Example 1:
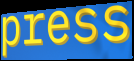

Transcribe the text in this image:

press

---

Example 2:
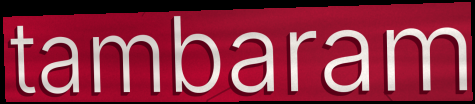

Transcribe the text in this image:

tambaram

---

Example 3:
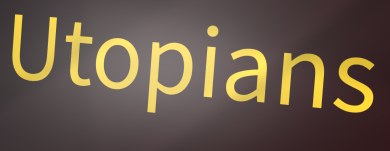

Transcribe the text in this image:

Utopians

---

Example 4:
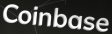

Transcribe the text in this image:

Coinbase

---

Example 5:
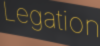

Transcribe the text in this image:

Legation